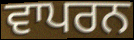
ਵਾਪਰਨ